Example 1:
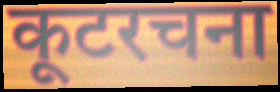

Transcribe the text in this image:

कूटरचना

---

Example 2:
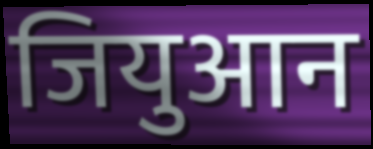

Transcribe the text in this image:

जियुआन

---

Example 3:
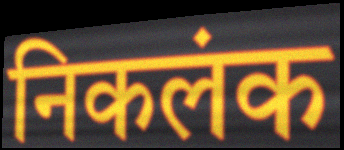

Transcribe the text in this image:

निकलंक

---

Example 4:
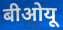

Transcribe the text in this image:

बीओयू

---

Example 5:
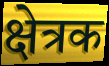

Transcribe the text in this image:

क्षेत्रक